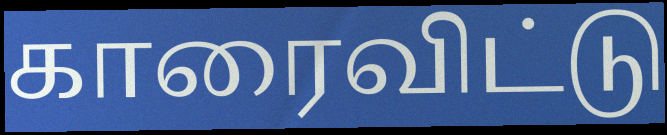
காரைவிட்டு